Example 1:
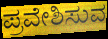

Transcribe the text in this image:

ಪ್ರವೇಶಿಸುವ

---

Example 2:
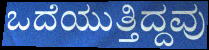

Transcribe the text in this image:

ಒದೆಯುತ್ತಿದ್ದವು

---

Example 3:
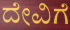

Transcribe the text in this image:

ದೇವಿಗೆ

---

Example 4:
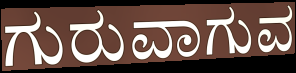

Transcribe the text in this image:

ಗುರುವಾಗುವ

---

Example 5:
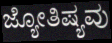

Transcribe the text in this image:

ಜ್ಯೋತಿಷ್ಯವು